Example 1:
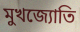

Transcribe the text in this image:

মুখজ্যোতি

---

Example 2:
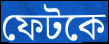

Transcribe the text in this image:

ফেটকে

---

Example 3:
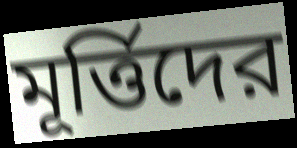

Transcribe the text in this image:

মূর্ত্তিদের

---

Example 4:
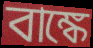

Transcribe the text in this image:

বাঙ্কে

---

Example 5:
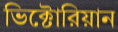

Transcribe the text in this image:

ভিক্টোরিয়ান